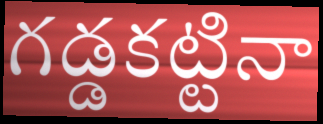
గడ్డకట్టినా